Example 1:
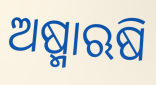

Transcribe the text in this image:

ଅଷ୍ମାଋଷି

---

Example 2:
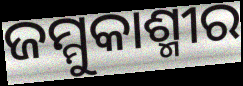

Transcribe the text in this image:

ଜମ୍ମୁକାଶ୍ମୀର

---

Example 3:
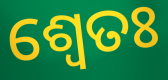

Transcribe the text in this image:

ଶ୍ଵେତଃ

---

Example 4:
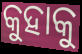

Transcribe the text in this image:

କୁହାକୁ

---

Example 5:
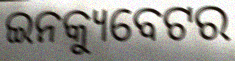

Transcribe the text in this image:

ଇନକ୍ୟୁବେଟର